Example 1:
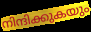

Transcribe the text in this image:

നിന്ദിക്കുകയും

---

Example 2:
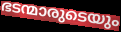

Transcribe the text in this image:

ഭടന്മാരുടെയും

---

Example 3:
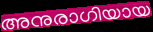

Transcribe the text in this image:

അനുരാഗിയായ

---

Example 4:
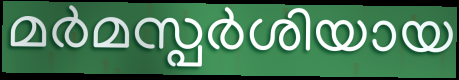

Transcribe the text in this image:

മർമസ്പർശിയായ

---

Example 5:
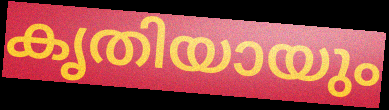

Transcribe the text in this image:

കൃതിയായും